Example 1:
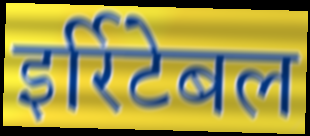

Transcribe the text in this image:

इर्रिटेबल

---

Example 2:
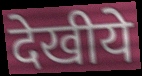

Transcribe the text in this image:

देखीये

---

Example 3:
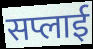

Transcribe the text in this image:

सप्लाई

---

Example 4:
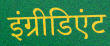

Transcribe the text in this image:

इंग्रीडिएंट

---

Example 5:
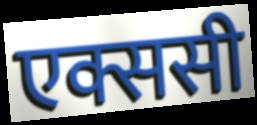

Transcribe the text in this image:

एक्ससी